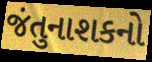
જંતુનાશકનો